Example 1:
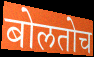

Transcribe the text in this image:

बोलतोच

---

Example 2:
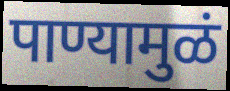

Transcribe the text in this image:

पाण्यामुळं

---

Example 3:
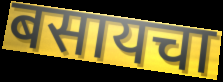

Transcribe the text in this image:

बसायचा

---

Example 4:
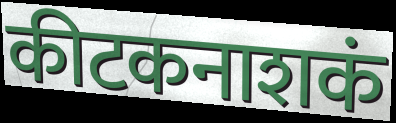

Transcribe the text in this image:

कीटकनाशकं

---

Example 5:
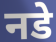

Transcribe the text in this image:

नडे